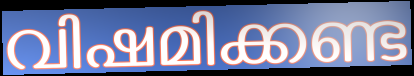
വിഷമിക്കണ്ട